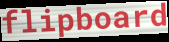
flipboard